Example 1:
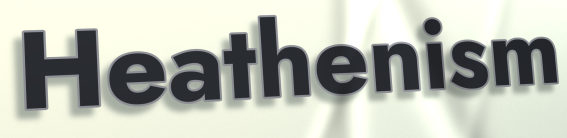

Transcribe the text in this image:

Heathenism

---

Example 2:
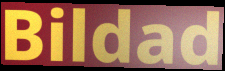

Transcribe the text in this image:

Bildad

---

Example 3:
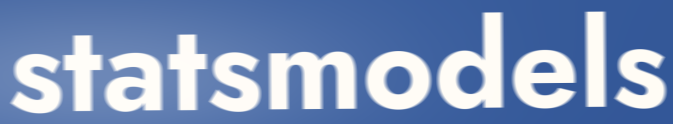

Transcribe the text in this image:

statsmodels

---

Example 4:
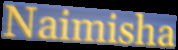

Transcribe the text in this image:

Naimisha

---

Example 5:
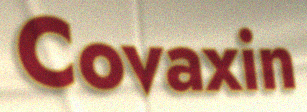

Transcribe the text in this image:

Covaxin